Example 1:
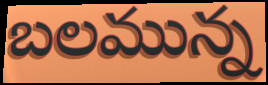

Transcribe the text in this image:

బలమున్న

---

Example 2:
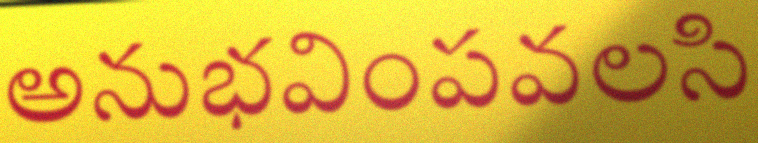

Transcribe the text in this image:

అనుభవింపవలసి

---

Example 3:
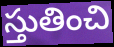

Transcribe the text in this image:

స్తుతించి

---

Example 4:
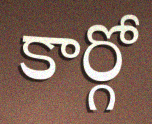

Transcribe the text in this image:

కార్గో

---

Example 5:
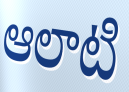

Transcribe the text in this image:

ఆలాటి